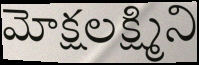
మోక్షలక్ష్మిని